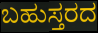
ಬಹುಸ್ತರದ